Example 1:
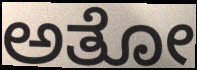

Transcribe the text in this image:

ಅತೋ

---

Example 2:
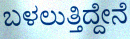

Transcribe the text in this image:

ಬಳಲುತ್ತಿದ್ದೇನೆ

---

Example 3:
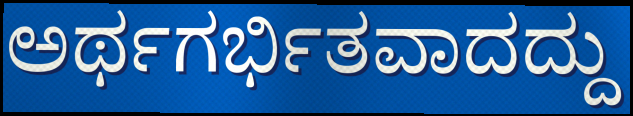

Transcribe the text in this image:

ಅರ್ಥಗರ್ಭಿತವಾದದ್ದು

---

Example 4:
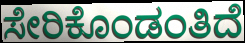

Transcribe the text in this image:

ಸೇರಿಕೊಂಡಂತಿದೆ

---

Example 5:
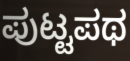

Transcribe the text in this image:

ಪುಟ್ಟಪಥ